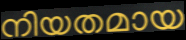
നിയതമായ